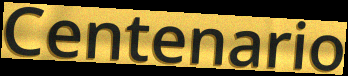
Centenario